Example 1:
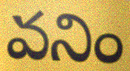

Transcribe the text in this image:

వనిం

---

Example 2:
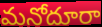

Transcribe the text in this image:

మనోదూరా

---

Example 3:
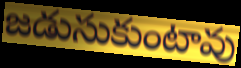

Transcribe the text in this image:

జడుసుకుంటావు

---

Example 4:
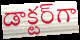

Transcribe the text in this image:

డాక్టర్‌గా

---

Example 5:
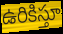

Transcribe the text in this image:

ఉరికిస్తూ